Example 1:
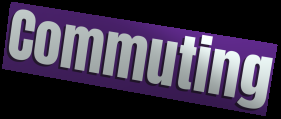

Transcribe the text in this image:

Commuting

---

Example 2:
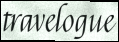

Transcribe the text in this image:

travelogue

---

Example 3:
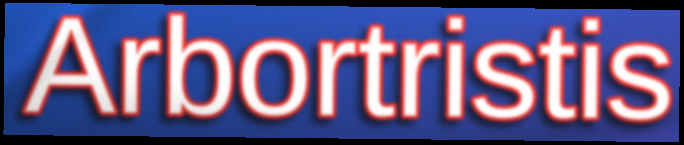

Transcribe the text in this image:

Arbortristis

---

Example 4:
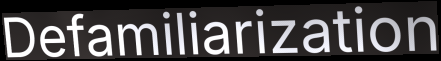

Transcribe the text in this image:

Defamiliarization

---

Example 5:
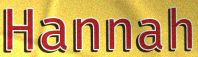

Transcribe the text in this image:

Hannah